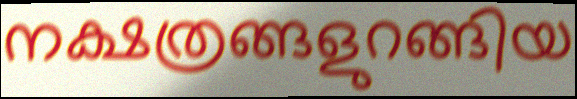
നക്ഷത്രങ്ങളുറങ്ങിയ